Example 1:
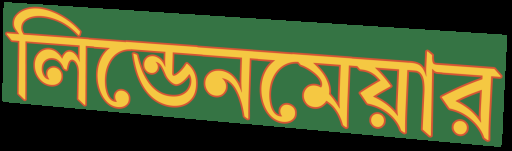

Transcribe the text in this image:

লিন্ডেনমেয়ার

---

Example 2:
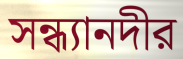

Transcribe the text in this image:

সন্ধ্যানদীর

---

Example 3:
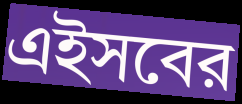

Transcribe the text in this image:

এইসবের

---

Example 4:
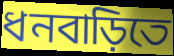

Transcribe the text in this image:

ধনবাড়িতে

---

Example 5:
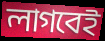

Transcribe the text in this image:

লাগবেই